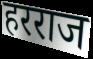
हरराज